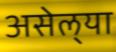
असेल्या